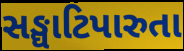
સઙ્ઘાટિપારુતા